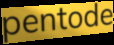
pentode